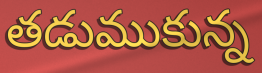
తడుముకున్న